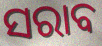
ସରାବ